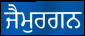
ਜੈਮੁਰਗਨ